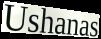
Ushanas